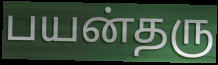
பயன்தரு